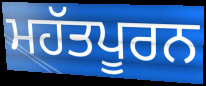
ਮਹੱਤਪੂਰਨ